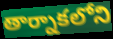
తార్నాకలోని